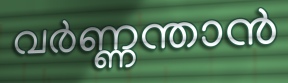
വർണ്ണന്താൻ